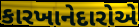
કારખાનેદારોએ